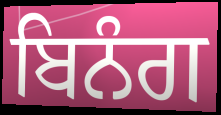
ਬਿਨੰਗ